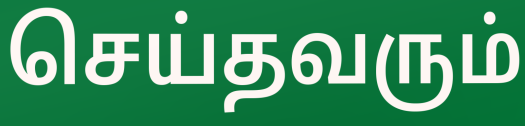
செய்தவரும்